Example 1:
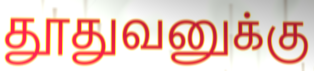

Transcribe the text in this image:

தூதுவனுக்கு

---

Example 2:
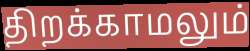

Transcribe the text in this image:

திறக்காமலும்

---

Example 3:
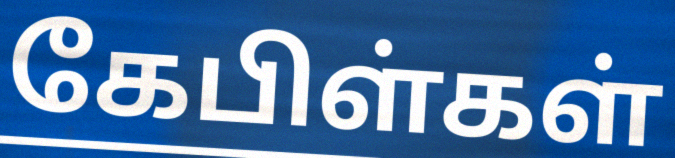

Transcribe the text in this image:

கேபிள்கள்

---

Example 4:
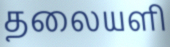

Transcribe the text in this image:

தலையளி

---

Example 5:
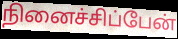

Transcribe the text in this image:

நினைச்சிப்பேன்